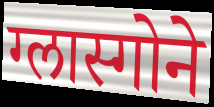
ग्लास्गोने